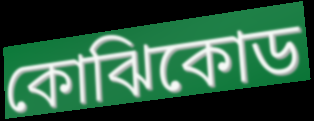
কোঝিকোড